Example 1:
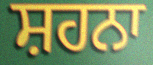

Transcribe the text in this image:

ਸ਼ਹਨਾ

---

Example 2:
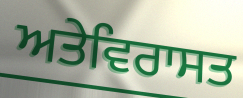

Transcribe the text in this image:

ਅਤੇਵਿਰਾਸਤ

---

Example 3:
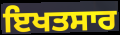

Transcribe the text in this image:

ਇਖਤਸਾਰ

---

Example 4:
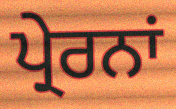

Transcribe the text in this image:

ਪ੍ਰੇਰਨਾਂ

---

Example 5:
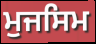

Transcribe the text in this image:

ਮੁਜਸਿਮ